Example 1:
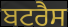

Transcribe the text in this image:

ਬਟਰੈਸ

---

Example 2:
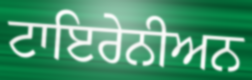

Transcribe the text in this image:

ਟਾਇਰੇਨੀਅਨ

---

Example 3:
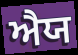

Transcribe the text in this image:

ਐਯ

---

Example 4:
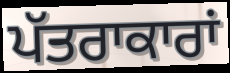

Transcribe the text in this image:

ਪੱਤਰਾਕਾਰਾਂ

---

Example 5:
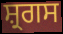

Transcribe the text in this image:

ਸ਼੍ਰਗਸ